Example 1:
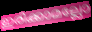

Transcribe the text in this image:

ഇരിക്കാമല്ലോ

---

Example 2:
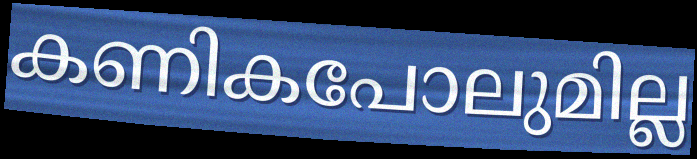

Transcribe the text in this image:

കണികപോലുമില്ല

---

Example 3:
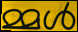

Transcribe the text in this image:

മ്മൾ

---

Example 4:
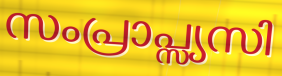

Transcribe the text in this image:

സംപ്രാപ്സ്യസി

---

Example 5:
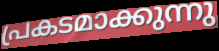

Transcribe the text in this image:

പ്രകടമാക്കുന്നു